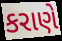
કરાણે